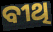
ବୀଥି